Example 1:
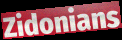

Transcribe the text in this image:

Zidonians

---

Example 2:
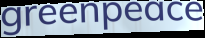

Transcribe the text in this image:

greenpeace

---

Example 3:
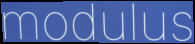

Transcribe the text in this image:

modulus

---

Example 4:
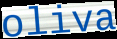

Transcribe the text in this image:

oliva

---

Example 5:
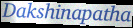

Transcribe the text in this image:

Dakshinapatha